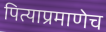
पित्याप्रमाणेच